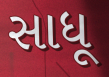
સાધૂ